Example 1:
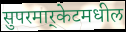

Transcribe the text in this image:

सुपरमार्केटमधील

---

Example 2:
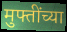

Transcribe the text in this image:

मुफ्तींच्या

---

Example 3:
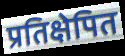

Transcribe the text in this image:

प्रतिक्षेपित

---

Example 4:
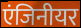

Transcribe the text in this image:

एंजिनीयर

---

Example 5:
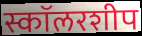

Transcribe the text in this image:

स्कॉलरशीप